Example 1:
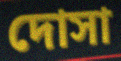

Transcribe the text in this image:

দোসা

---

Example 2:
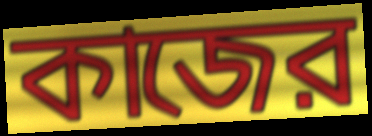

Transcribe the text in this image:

কাজের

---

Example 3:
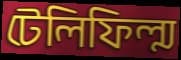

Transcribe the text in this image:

টেলিফিল্ম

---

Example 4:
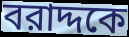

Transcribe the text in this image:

বরাদ্দকে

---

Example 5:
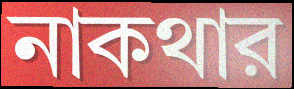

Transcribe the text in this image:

নাকথার